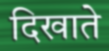
दिखाते